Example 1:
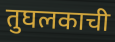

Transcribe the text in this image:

तुघलकाची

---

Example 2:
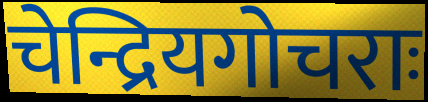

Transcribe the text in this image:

चेन्द्रियगोचराः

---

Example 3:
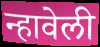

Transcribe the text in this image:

न्हावेली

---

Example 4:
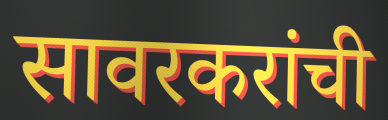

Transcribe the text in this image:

सावरकरांची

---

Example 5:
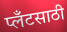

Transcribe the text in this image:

प्लँटसाठी